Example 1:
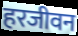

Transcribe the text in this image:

हरजीवन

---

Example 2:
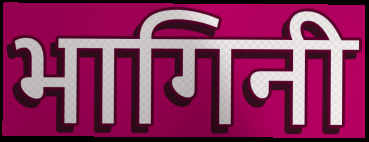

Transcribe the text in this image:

भागिनी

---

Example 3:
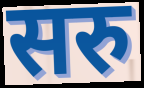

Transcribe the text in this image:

सरु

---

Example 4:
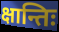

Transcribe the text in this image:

क्षान्तिः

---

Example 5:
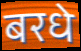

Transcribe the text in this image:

बरधे